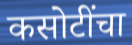
कसोटींचा